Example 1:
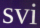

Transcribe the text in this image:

svi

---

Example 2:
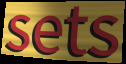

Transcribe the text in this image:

sets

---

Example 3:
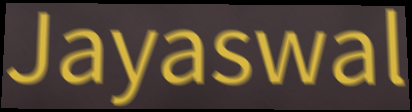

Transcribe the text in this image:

Jayaswal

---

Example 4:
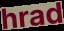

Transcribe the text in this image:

hrad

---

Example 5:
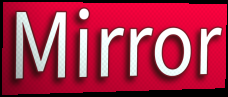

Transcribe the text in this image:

Mirror